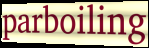
parboiling